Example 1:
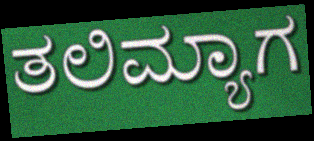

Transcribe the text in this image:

ತಲಿಮ್ಯಾಗ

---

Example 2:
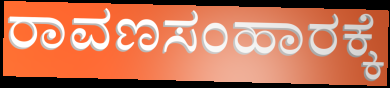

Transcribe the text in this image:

ರಾವಣಸಂಹಾರಕ್ಕೆ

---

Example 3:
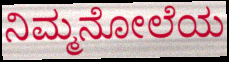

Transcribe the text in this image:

ನಿಮ್ಮನೋಲೆಯ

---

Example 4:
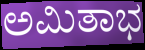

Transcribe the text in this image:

ಅಮಿತಾಭ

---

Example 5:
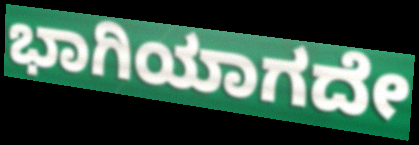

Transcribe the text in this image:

ಭಾಗಿಯಾಗದೇ